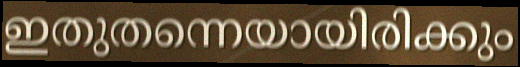
ഇതുതന്നെയായിരിക്കും